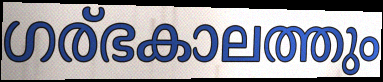
ഗര്ഭകാലത്തും